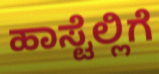
ಹಾಸ್ಟೆಲ್ಲಿಗೆ